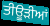
ਤੀਊੜੀਆਂ